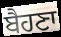
ਬੈਹਣਾ